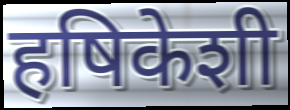
हषिकेशी